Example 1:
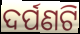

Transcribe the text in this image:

ଦର୍ପଣଟି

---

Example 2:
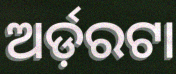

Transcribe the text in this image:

ଅର୍ଡ଼ରଟା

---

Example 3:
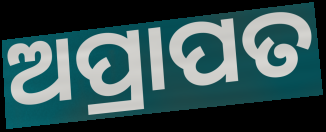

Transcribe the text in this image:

ଅପ୍ରାପତ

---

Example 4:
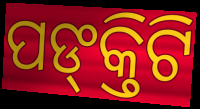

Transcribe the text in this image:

ପଙ୍‌କ୍ତିଟି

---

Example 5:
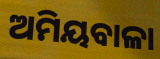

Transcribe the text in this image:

ଅମିୟବାଳା